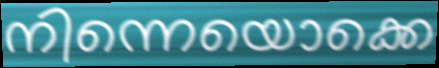
നിന്നെയൊക്കെ